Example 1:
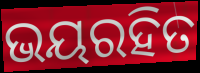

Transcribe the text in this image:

ଭୟରହିତ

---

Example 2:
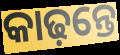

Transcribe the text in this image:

କାଢ଼ନ୍ତେ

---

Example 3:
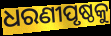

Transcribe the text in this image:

ଧରଣୀପୃଷ୍ଠକୁ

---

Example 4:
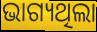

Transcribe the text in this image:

ଭାଗ୍ୟଥିଲା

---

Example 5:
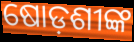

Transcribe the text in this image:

ଷୋଡ଼ଶୀଙ୍କ